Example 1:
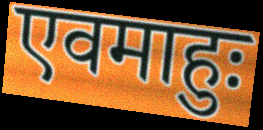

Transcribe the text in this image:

एवमाहुः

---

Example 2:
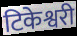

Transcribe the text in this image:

टिकेश्वरी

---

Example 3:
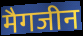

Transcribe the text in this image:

मैगजीन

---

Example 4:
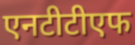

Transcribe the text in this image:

एनटीटीएफ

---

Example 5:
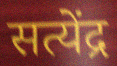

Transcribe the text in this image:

सत्येंद्र